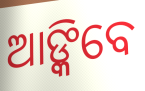
ଆଙ୍କିବେ